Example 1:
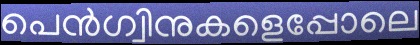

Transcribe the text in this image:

പെൻഗ്വിനുകളെപ്പോലെ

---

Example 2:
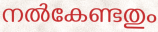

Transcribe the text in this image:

നൽകേണ്ടതും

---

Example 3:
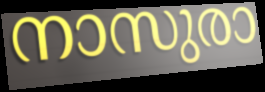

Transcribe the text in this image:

നാസുരാ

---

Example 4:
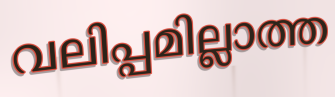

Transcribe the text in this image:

വലിപ്പമില്ലാത്ത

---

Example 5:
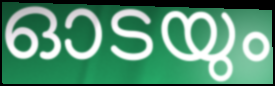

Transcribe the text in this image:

ഓടയും